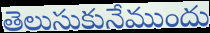
తెలుసుకునేముందు